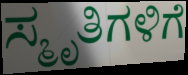
ಸ್ಮೃತಿಗಳಿಗೆ